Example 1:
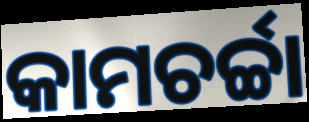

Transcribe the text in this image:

କାମଚର୍ଚ୍ଚା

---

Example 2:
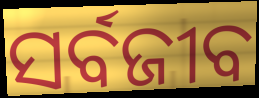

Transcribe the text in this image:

ସର୍ବଜୀବ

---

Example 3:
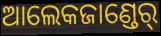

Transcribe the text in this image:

ଆଲେକଜାଣ୍ଡେର୍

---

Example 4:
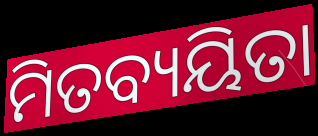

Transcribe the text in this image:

ମିତବ୍ୟୟିତା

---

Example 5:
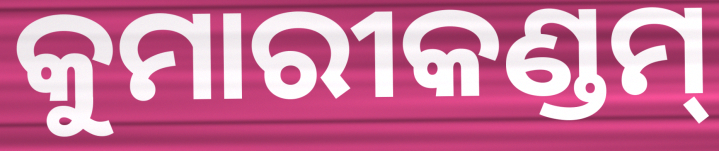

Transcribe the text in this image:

କୁମାରୀକଣ୍ଡମ୍